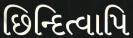
છિન્દિત્વાપિ